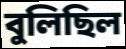
বুলিছিল